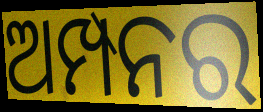
ଅମ୍ପନର